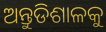
ଅନ୍ତୁଡିଶାଳକୁ